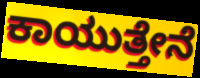
ಕಾಯುತ್ತೇನೆ